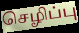
செழிப்பு